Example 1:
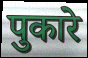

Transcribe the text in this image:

पुकारे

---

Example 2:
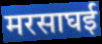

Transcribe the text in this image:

मरसाघई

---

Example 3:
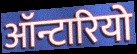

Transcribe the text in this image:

ऑन्टारियो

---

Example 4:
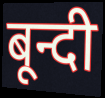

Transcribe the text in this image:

बून्दी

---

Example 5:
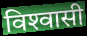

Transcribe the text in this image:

विश्‍वासी